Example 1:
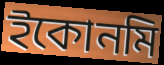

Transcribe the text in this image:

ইকোনমি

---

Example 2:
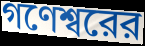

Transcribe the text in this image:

গণেশ্বরের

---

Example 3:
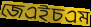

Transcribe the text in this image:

জেএইচএম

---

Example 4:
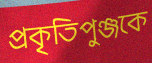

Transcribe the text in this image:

প্রকৃতিপুঞ্জকে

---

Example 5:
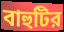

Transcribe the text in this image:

বাহুটির